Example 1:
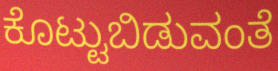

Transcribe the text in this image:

ಕೊಟ್ಟುಬಿಡುವಂತೆ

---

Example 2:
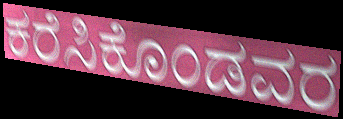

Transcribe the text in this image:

ಕರೆಸಿಕೊಂಡವರ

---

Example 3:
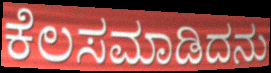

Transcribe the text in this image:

ಕೆಲಸಮಾಡಿದನು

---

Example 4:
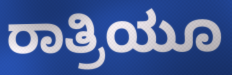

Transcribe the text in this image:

ರಾತ್ರಿಯೂ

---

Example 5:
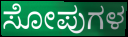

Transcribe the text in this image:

ಸೋಪುಗಳ